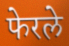
फेरले